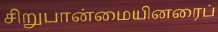
சிறுபான்மையினரைப்